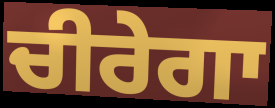
ਚੀਰੇਗਾ